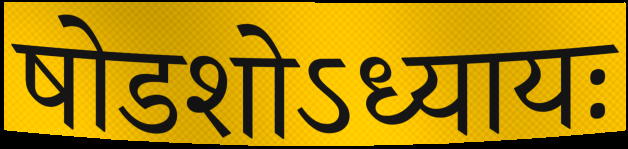
षोडशोऽध्यायः